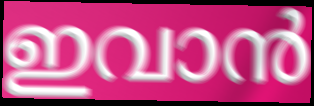
ഇവാൻ